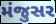
મંજુસર